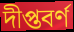
দীপ্তবর্ণ